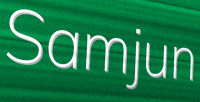
Samjun